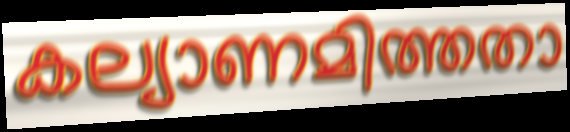
കല്യാണമിത്തതാ